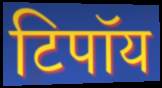
टिपॉय